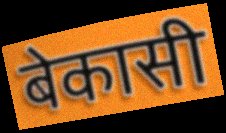
बेकासी